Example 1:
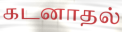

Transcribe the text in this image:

கடனாதல்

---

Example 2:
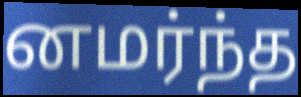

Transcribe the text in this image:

னமர்ந்த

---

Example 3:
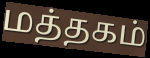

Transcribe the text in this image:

மத்தகம்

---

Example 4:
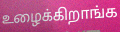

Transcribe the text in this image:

உழைக்கிறாங்க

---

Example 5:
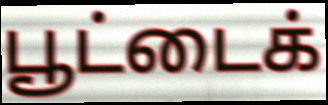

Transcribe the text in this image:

பூட்டைக்